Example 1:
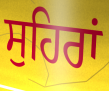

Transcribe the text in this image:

ਸੁਹਿਰਾਂ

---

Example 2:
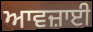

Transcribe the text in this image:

ਆਵਜ਼ਾਈ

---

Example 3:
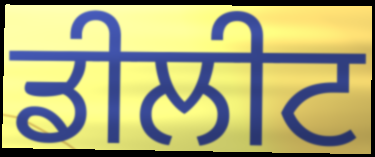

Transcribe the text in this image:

ਡੀਲੀਟ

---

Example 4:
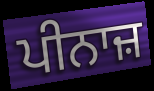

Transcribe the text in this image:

ਪੀਨਾਜ਼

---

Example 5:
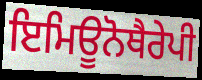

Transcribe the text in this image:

ਇਮਿਊਨੋਥੈਰੇਪੀ